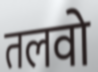
तलवो